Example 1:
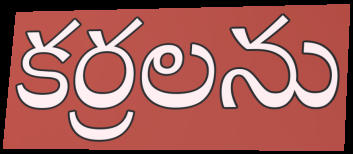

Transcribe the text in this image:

కర్రలను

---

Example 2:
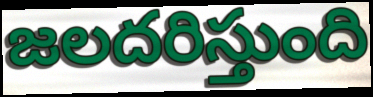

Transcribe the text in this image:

జలదరిస్తుంది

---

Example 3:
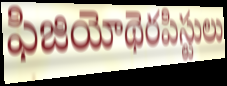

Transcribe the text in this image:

ఫిజియోథెరపిస్టులు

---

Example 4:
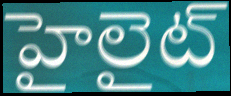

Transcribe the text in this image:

హైలైట్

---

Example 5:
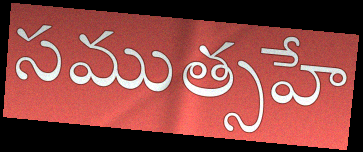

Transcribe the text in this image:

సముత్సహే